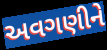
અવગણીને